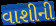
વાશીની